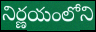
నిర్ణయంలోని